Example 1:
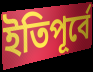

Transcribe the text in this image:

ইতিপূৰ্বে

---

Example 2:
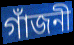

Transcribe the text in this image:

গাঁজনী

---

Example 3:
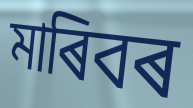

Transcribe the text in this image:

মাৰিবৰ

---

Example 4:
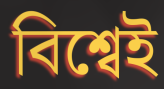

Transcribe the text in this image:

বিশ্বেই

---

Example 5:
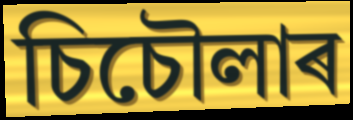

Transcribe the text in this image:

চিচৌলাৰ